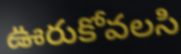
ఊరుకోవలసి